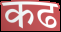
कढ